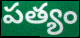
పత్యం